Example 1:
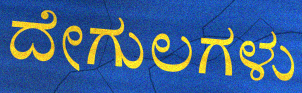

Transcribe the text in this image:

ದೇಗುಲಗಳು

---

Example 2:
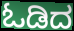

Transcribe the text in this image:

ಓಡಿದ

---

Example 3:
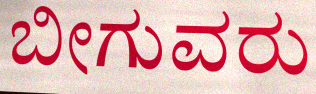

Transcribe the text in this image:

ಬೀಗುವರು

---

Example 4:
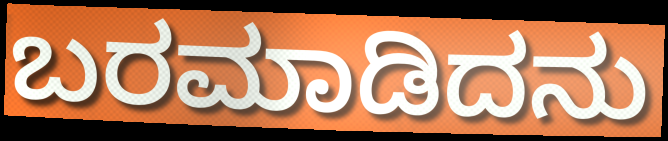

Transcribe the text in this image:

ಬರಮಾಡಿದನು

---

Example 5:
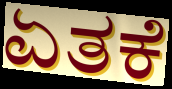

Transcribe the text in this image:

ಏತಕೆ